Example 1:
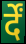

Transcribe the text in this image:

र्दें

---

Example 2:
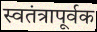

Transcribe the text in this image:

स्वतंत्रापूर्वक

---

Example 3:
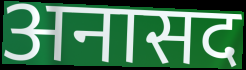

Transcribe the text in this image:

अनासद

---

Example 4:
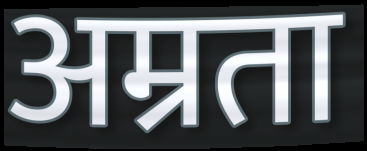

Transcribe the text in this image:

अम्रता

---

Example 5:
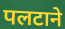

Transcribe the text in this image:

पलटाने